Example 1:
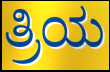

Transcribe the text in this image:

ತ್ರಿಯ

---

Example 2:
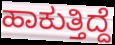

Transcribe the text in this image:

ಹಾಕುತ್ತಿದ್ದೆ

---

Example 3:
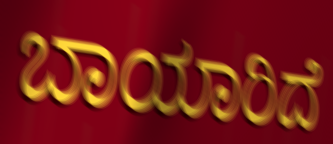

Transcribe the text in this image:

ಬಾಯಾರಿದೆ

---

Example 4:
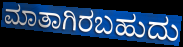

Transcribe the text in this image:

ಮಾತಾಗಿರಬಹುದು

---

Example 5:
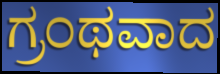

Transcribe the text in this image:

ಗ್ರಂಥವಾದ